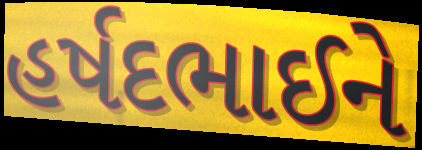
હર્ષદભાઈને